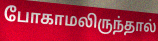
போகாமலிருந்தால்